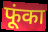
फूंका